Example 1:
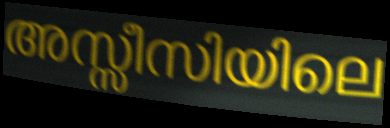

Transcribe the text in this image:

അസ്സീസിയിലെ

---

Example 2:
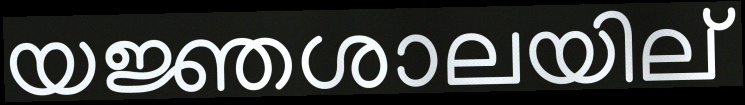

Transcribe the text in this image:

യജ്ഞശാലയില്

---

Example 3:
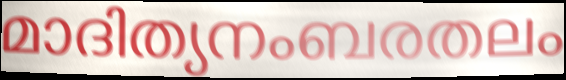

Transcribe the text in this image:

മാദിത്യനംബരതലം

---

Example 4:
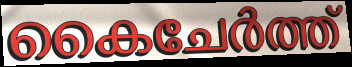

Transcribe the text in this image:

കൈചേർത്ത്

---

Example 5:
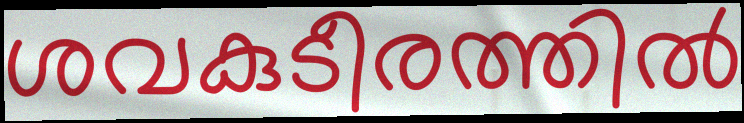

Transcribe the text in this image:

ശവകുടീരത്തിൽ